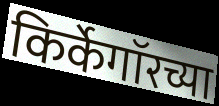
किर्केगॉरच्या